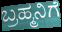
ಬ್ರಹ್ಮನಿಗೆ